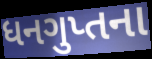
ધનગુપ્તના